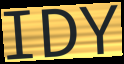
IDY